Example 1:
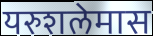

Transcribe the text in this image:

यरुशलेमास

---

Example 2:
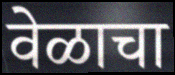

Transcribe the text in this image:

वेळाचा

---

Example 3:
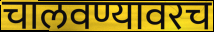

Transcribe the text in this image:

चालवण्यावरच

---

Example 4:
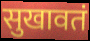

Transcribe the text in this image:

सुखावतं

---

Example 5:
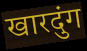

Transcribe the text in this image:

खारदुंग